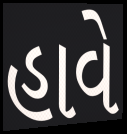
હાવે